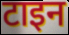
टाइन